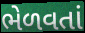
ભેળવતાં